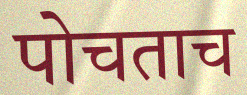
पोचताच